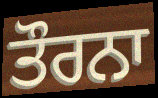
ਤੌਰਨਾ